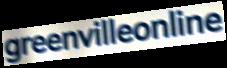
greenvilleonline